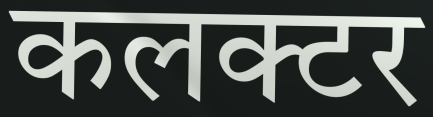
कलक्‍टर